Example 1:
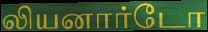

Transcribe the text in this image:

லியனார்டோ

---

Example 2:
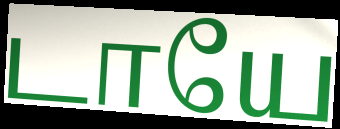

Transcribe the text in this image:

டாயே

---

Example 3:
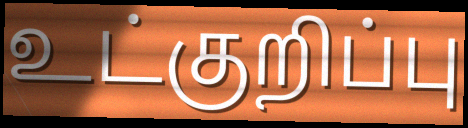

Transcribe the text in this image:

உட்குறிப்பு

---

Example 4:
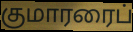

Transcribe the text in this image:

குமாரரைப்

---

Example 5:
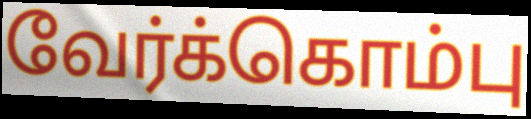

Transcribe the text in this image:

வேர்க்கொம்பு